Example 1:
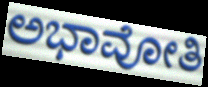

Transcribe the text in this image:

ಅಭಾವೋತಿ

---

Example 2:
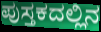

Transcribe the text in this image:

ಪುಸ್ತಕದಲ್ಲಿನ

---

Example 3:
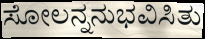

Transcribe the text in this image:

ಸೋಲನ್ನನುಭವಿಸಿತು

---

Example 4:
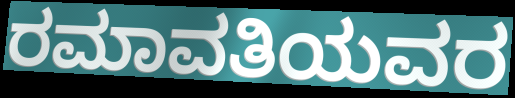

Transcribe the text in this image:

ರಮಾವತಿಯವರ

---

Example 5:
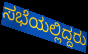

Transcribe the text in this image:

ಸಭೆಯಲ್ಲಿದ್ದರು